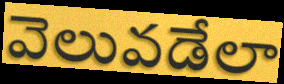
వెలువడేలా